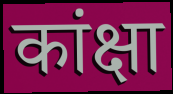
कांक्षा